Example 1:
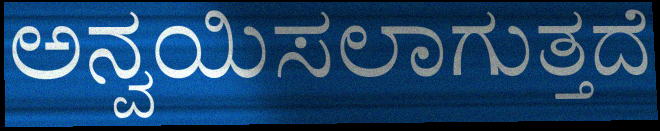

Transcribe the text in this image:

ಅನ್ವಯಿಸಲಾಗುತ್ತದೆ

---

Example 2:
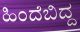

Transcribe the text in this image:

ಹಿಂದೆಬಿದ್ದ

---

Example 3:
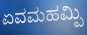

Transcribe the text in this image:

ಏವಮಹಮ್ಪಿ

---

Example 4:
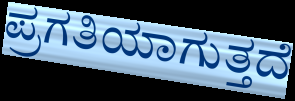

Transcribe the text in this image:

ಪ್ರಗತಿಯಾಗುತ್ತದೆ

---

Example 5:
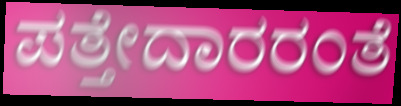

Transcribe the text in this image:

ಪತ್ತೇದಾರರಂತೆ